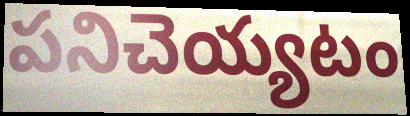
పనిచెయ్యటం